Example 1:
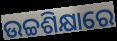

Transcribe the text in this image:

ଉଚ୍ଚଶିକ୍ଷାରେ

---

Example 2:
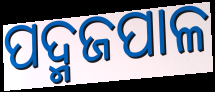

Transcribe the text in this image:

ପଦ୍ମଜପାଳ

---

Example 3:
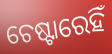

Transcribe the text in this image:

ଚେଷ୍ଟାରେହିଁ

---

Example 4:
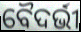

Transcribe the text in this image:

ବୈଦର୍ଭୀ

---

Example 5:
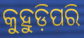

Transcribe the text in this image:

କୁହୁଡ଼ିପରି